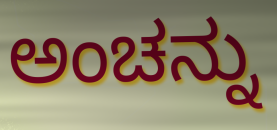
ಅಂಚನ್ನು